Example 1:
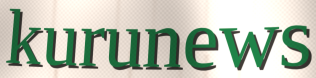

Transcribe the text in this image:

kurunews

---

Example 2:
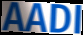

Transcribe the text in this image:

AADI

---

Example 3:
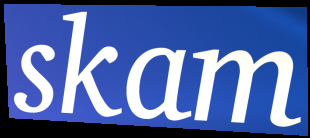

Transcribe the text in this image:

skam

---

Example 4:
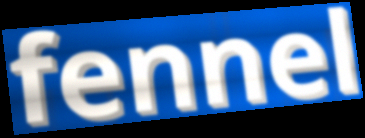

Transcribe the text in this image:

fennel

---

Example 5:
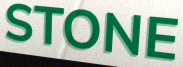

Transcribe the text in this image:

STONE